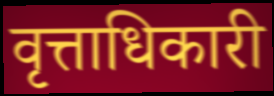
वृत्ताधिकारी